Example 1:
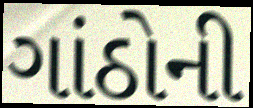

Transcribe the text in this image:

ગાંઠોની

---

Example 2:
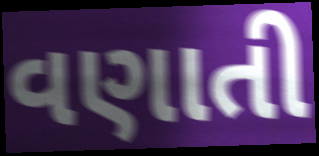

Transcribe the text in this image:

વણાતી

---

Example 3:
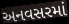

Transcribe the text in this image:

અનવસરમાં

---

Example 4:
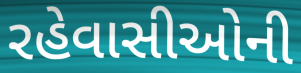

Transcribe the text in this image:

રહેવાસીઓની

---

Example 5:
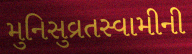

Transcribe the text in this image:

મુનિસુવ્રતસ્વામીની